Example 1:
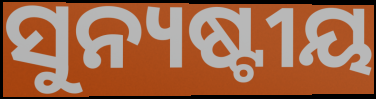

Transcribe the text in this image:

ସୁନ୍ୟଷ୍ଟୀୟ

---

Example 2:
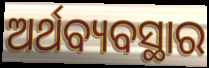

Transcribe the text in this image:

ଅର୍ଥବ୍ୟବସ୍ଥାର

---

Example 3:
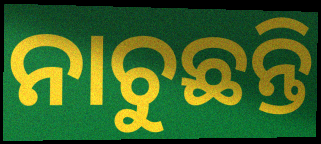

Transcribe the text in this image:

ନାଚୁଛନ୍ତି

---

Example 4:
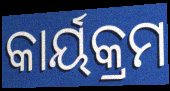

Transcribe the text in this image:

କାର୍ୟକ୍ରମ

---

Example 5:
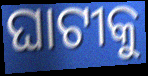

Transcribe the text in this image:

ଘାଟୀକୁ